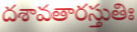
దశావతారస్తుతిః